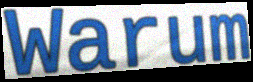
Warum